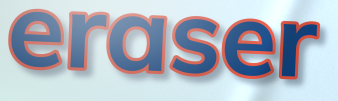
eraser